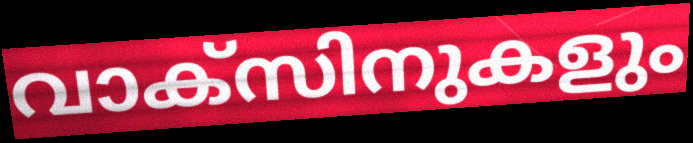
വാക്സിനുകളും